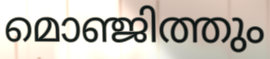
മൊഞ്ജിത്തും